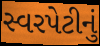
સ્વરપેટીનું